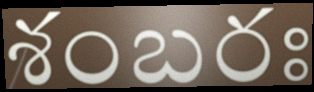
శంబరః